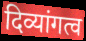
दिव्यांगत्व